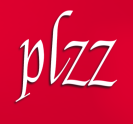
plzz